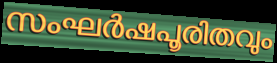
സംഘർഷപൂരിതവും